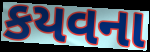
કયવના